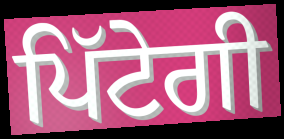
ਪਿੱਟੇਗੀ